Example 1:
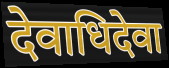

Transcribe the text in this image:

देवाधिदेवा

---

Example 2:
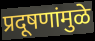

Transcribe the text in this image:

प्रदूषणांमुळे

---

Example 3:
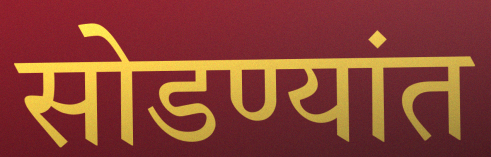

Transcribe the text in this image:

सोडण्यांत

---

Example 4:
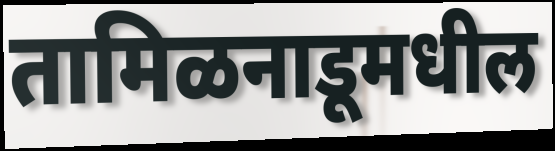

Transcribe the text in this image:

तामिळनाडूमधील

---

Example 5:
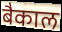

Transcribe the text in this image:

बैकाल